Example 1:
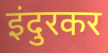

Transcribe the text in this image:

इंदुरकर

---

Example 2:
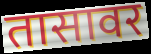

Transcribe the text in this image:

तासावर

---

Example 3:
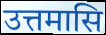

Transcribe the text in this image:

उत्तमासि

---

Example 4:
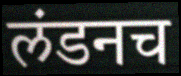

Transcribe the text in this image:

लंडनच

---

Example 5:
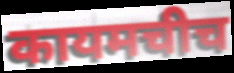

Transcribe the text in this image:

कायमचीच